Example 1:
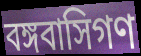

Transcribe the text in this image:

বঙ্গবাসিগণ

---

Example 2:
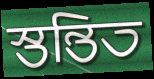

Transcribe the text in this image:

স্তন্তিত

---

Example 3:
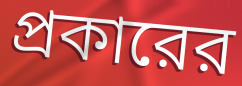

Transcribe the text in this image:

প্রকারের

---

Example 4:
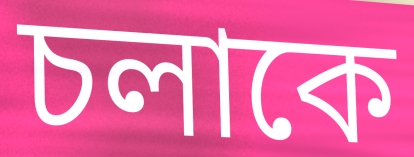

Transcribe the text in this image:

চলাকে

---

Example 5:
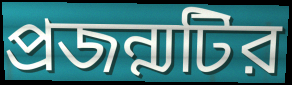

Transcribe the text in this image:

প্রজন্মটির